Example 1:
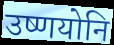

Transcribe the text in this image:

उष्णयोनि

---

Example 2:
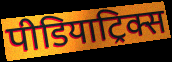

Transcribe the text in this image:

पीडियाट्रिक्स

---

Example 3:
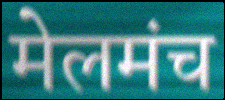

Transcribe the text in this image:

मेलमंच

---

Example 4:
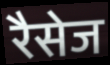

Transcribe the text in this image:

रैसेज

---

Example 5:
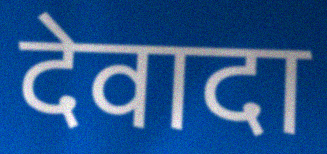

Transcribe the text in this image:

देवादा